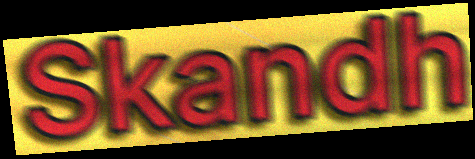
Skandh